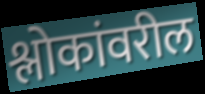
श्लोकांवरील